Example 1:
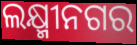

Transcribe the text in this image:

ଲକ୍ଷ୍ମୀନଗର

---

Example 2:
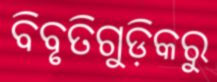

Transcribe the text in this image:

ବିବୃତିଗୁଡ଼ିକରୁ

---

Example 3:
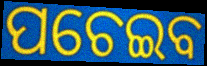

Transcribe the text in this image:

ପଚେଇବ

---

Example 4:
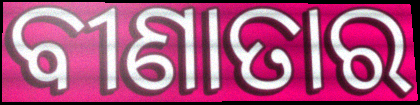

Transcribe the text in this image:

ବୀଣାତାର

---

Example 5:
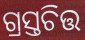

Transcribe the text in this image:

ଗ୍ରସ୍ତଚିତ୍ତ